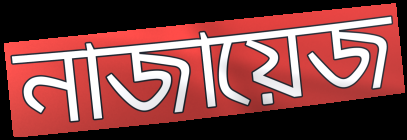
নাজায়েজ